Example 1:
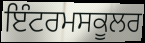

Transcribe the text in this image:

ਇੰਟਰਮਸਕੂਲਰ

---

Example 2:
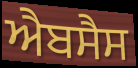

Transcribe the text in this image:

ਐਬਸੈਸ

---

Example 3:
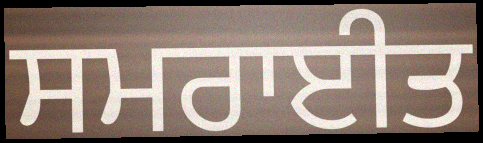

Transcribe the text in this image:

ਸਮਰਾਈਤ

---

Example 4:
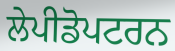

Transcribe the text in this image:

ਲੇਪੀਡੋਪਟਰਨ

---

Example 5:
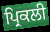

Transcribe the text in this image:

ਪ੍ਰਿਕਲੀ